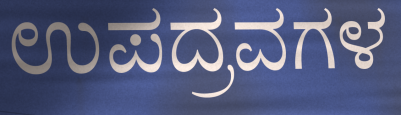
ಉಪದ್ರವಗಳ